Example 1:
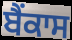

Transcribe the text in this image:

ਬੈਂਕਾਸ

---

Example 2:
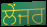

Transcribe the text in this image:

ਲੇਂਜਰ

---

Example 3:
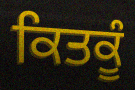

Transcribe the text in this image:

ਕਿਤਕੂੰ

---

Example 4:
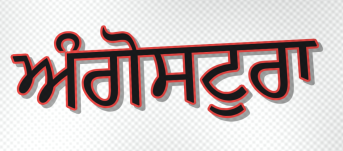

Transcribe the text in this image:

ਅੰਗੋਸਟੁਰਾ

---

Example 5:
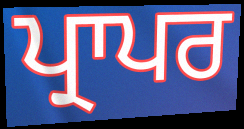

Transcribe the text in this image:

ਪ੍ਰਾਪਰ